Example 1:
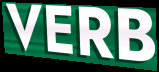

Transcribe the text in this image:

VERB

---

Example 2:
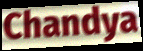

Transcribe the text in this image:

Chandya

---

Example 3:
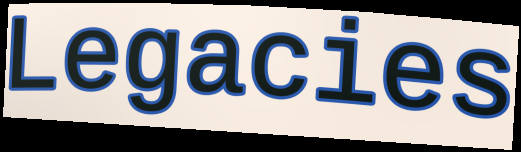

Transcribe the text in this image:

Legacies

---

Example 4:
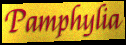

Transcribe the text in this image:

Pamphylia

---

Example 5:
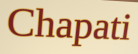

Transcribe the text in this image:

Chapati